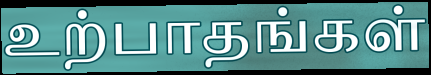
உற்பாதங்கள்